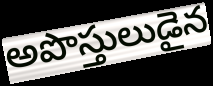
అపొస్తులుడైన